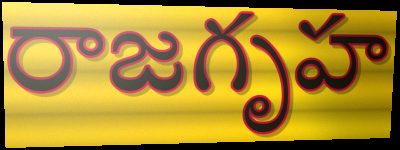
రాజగృహ